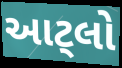
આટ્લો